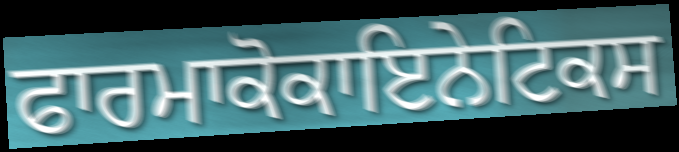
ਫਾਰਮਾਕੋਕਾਇਨੇਟਿਕਸ